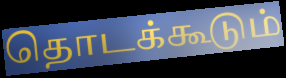
தொடக்கூடும்